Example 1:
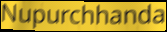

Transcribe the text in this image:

Nupurchhanda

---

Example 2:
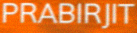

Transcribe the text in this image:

PRABIRJIT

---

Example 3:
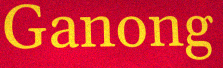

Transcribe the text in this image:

Ganong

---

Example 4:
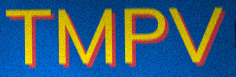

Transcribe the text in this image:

TMPV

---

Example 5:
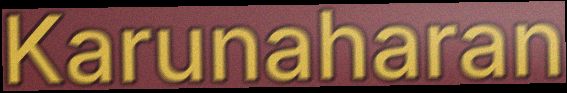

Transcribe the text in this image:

Karunaharan